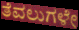
ತೆವಲುಗಳೇ